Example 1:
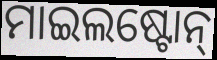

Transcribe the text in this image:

ମାଇଲଷ୍ଟୋନ୍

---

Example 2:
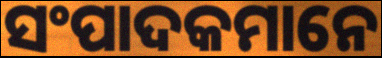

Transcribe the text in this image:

ସଂପାଦକମାନେ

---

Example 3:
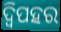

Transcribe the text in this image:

ଦ୍ୱିପହର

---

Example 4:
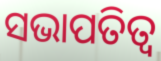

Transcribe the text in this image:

ସଭାପତିତ୍ଵ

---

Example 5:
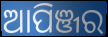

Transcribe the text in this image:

ଆପିଞ୍ଜର